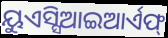
ୟୁଏସ୍ସିଆଇଆର୍ଏଫ୍